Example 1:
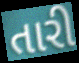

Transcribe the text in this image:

તારી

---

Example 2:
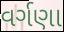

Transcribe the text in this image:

વર્ગણા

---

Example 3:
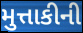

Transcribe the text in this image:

મુત્તાકીની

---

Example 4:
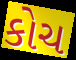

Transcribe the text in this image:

કોચ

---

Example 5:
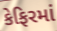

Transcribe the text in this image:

કેફિરમાં